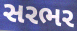
સરભર